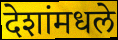
देशांमधले